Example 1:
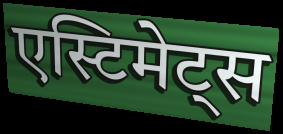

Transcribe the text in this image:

एस्टिमेट्स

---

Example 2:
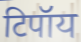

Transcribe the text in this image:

टिपॉय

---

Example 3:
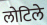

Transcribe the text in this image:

लोटिले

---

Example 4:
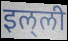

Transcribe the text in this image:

इल्ली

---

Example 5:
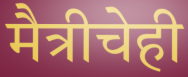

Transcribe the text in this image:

मैत्रीचेही